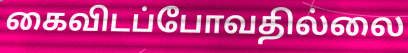
கைவிடப்போவதில்லை